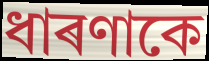
ধাৰণাকে